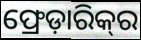
ଫ୍ରେଡ଼ାରିକ୍‍ର